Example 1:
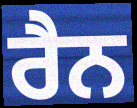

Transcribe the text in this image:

ਰੈਨ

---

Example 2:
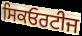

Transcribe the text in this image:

ਸਿਕਓਰਟੀਜ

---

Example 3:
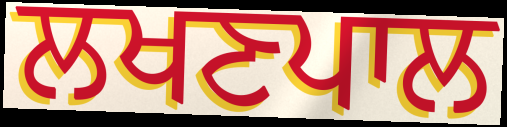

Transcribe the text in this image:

ਲਖਣਪਾਲ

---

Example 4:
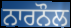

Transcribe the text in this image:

ਨਾਰਨੌਲ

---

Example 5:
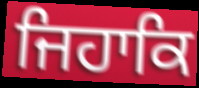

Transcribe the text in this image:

ਜਿਹਾਕਿ